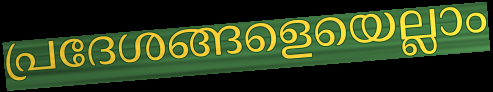
പ്രദേശങ്ങളെയെല്ലാം